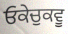
ਓਕੇਚੁਕਵੂ